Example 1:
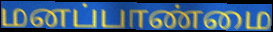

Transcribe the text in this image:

மனப்பாண்மை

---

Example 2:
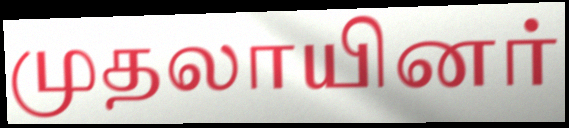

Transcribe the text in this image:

முதலாயினர்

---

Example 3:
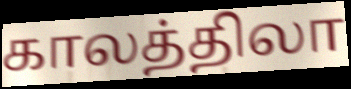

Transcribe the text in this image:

காலத்திலா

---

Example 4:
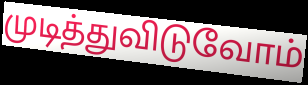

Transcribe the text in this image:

முடித்துவிடுவோம்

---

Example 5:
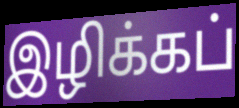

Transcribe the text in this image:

இழிக்கப்